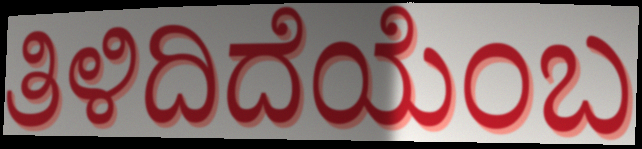
ತಿಳಿದಿದೆಯೆಂಬ